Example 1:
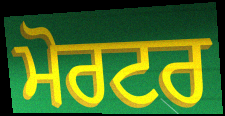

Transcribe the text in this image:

ਮੋਰਟਰ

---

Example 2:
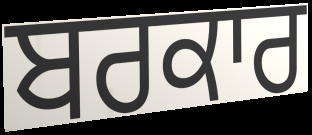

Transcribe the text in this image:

ਬਰਕਾਰ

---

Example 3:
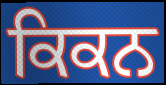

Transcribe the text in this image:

ਕਿਕਨ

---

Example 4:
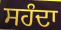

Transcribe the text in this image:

ਸਹੰਦਾ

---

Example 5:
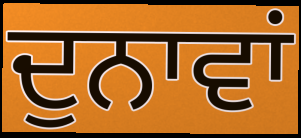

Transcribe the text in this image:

ਦੁਨਾਵਾਂ